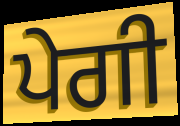
ਪੇਗੀ